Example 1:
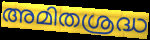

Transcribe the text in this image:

അമിതശ്രദ്ധ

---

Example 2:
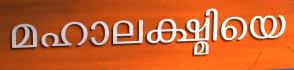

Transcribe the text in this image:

മഹാലക്ഷ്മിയെ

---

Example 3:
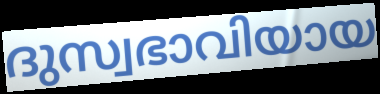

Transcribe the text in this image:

ദുസ്വഭാവിയായ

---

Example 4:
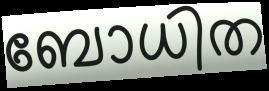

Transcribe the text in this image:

ബോധിത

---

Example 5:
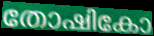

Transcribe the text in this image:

തോഷികോ